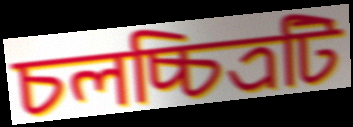
চলচ্চিত্রটি